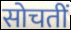
सोचतीं